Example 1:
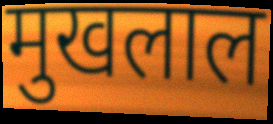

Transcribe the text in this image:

मुखलाल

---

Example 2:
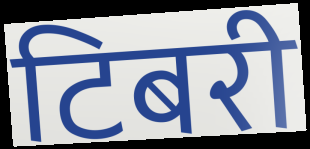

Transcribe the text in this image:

टिबरी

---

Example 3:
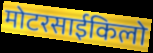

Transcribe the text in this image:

मोटरसाईकिलो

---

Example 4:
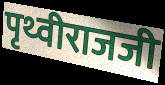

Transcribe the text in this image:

पृथ्वीराजजी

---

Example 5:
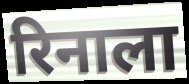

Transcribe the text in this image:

रिनाला